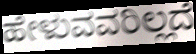
ಹೇಳುವವರಿಲ್ಲದೆ